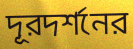
দূরদর্শনের